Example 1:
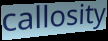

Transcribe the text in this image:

callosity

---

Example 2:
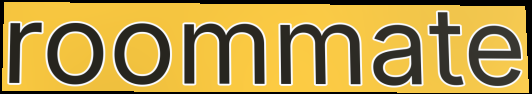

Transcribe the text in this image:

roommate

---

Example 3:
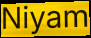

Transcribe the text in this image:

Niyam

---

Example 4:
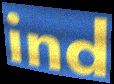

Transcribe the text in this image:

ind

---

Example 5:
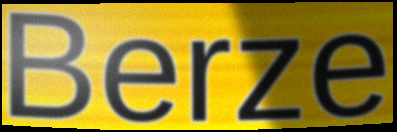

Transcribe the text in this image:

Berze